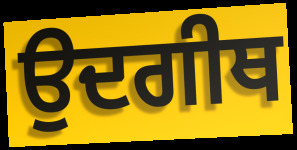
ਉਦਗੀਥ